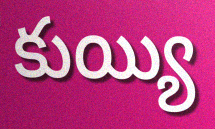
కుయ్యి